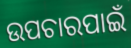
ଉପଚାରପାଇଁ